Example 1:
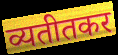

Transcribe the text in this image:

व्यतीतकर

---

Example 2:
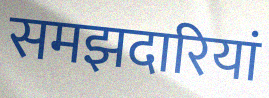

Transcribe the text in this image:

समझदारियां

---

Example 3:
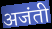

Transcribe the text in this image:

अजंती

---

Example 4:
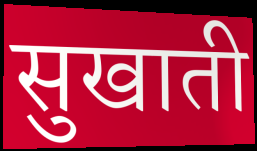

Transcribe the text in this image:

सुखाती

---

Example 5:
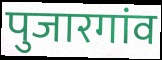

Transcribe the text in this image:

पुजारगांव